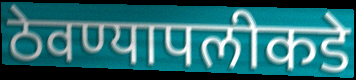
ठेवण्यापलीकडे